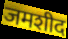
जमशीद